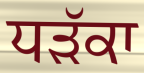
ਧੜੱਕਾ